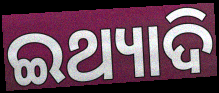
ଇଥ୍ୟାଦି